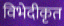
विभेदीकृत